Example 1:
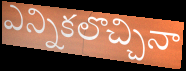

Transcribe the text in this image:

ఎన్నికలొచ్చినా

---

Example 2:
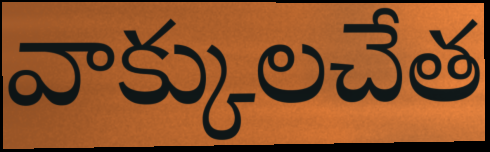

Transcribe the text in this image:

వాక్కులచేత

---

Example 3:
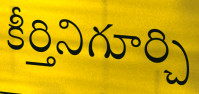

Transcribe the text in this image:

కీర్తినిగూర్చి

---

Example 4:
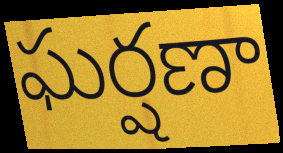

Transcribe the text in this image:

ఘర్షణా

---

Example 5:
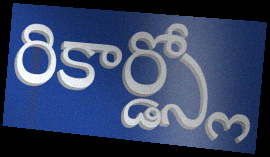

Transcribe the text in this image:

రికార్డ్స్లో